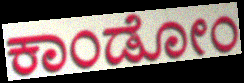
ಕಾಂಡೋಂ